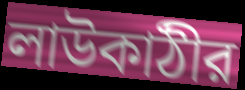
লাউকাঠীর